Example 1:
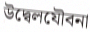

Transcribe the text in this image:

উদ্বেলযৌবনা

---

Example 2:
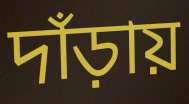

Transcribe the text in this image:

দাঁড়ায়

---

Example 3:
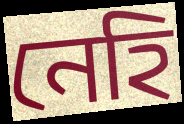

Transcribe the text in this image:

নেহি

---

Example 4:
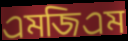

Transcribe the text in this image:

এমজিএম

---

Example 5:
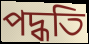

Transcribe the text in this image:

পদ্ধতি